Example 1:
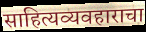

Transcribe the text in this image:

साहित्यव्यवहाराचा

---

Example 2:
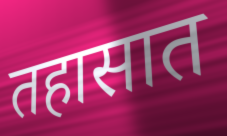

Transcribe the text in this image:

तहासात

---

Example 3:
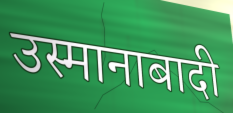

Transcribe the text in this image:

उस्मानाबादी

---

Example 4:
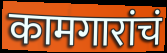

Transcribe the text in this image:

कामगारांचं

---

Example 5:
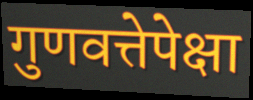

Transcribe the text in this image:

गुणवत्तेपेक्षा